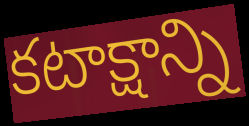
కటాక్షాన్ని